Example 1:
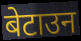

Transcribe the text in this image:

बेटाउन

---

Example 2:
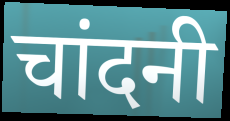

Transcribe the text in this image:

चांदनी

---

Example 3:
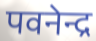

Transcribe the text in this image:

पवनेन्द्र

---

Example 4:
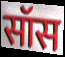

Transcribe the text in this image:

सॉस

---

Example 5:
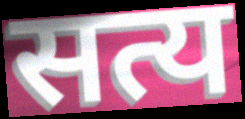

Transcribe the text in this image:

सत्य